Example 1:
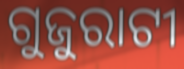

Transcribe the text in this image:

ଗୁଜୁରାଟୀ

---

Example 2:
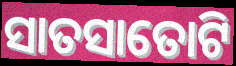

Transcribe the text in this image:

ସାତସାତୋଟି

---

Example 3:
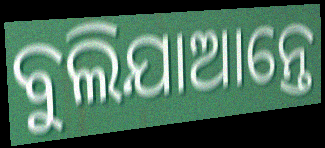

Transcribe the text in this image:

ବୁଲିଯାଆନ୍ତେ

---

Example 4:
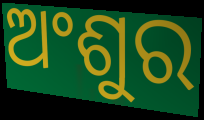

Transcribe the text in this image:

ଅଂଶୁର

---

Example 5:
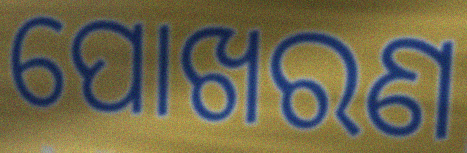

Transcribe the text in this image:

ପୋଖରଣ